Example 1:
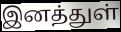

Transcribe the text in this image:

இனத்துள்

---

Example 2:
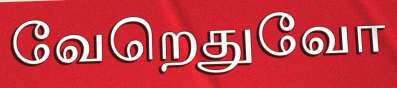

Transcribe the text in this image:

வேறெதுவோ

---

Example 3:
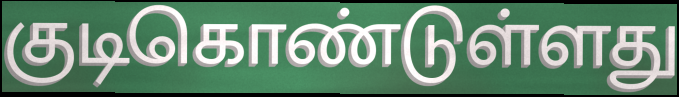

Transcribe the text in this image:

குடிகொண்டுள்ளது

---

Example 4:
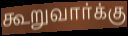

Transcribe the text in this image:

கூறுவார்க்கு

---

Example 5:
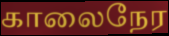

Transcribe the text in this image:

காலைநேர